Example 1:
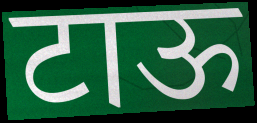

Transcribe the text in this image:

टाऊ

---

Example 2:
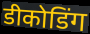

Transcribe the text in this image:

डीकोडिंग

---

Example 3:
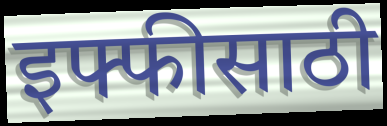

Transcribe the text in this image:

इफ्फीसाठी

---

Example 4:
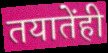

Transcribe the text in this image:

तयातेंही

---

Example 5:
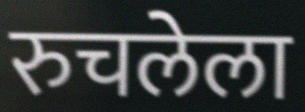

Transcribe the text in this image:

रुचलेला